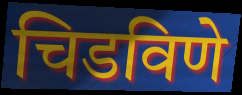
चिडविणे